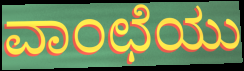
ವಾಂಛೆಯು